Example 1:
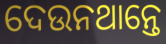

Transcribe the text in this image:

ଦେଉନଥାନ୍ତେ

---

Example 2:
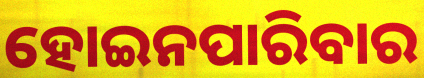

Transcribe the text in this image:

ହୋଇନପାରିବାର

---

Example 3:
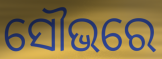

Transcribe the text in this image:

ସୌଭରେ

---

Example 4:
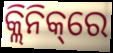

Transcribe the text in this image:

କ୍ଲିନିକ୍‌ରେ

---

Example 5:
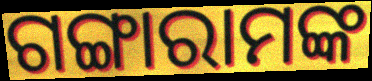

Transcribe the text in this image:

ଗଙ୍ଗାରାମଙ୍କ